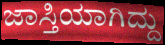
ಜಾಸ್ತಿಯಾಗಿದ್ದು